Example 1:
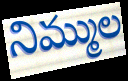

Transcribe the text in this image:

నిమ్ముల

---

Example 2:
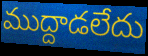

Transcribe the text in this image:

ముద్దాడలేదు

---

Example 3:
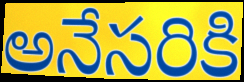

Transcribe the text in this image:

అనేసరికి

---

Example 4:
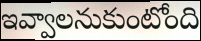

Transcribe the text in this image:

ఇవ్వాలనుకుంటోంది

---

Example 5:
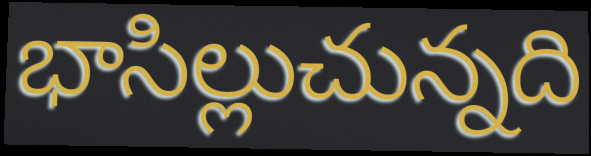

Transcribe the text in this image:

భాసిల్లుచున్నది